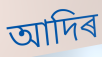
আদিৰ